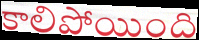
కాలిపోయింది